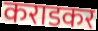
कराडकर